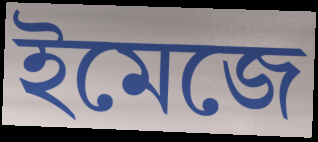
ইমেজে